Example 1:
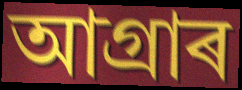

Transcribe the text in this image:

আগ্ৰাৰ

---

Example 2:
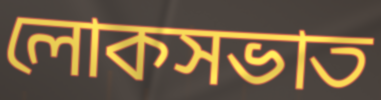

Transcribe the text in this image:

লোকসভাত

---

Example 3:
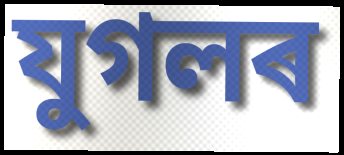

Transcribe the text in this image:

যুগলৰ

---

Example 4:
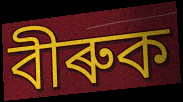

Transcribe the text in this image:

বীৰুক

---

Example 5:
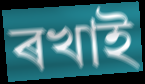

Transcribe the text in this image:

ৰখাই